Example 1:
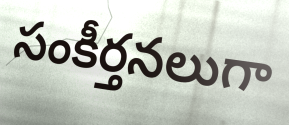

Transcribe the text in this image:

సంకీర్తనలుగా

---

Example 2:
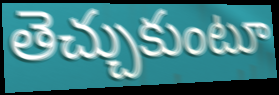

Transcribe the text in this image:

తెచ్చుకుంటూ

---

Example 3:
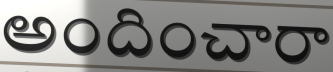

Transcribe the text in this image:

అందించారా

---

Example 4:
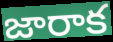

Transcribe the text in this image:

జారాక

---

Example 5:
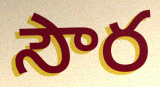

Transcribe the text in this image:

సౌర